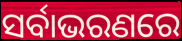
ସର୍ବାଭରଣରେ